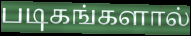
படிகங்களால்